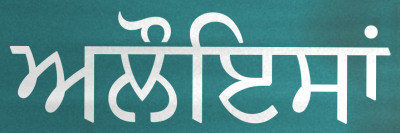
ਅਲੌਇਸਾਂ